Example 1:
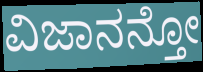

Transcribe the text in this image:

ವಿಜಾನನ್ತೋ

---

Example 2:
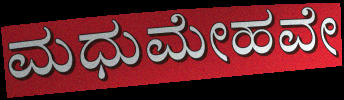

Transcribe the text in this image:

ಮಧುಮೇಹವೇ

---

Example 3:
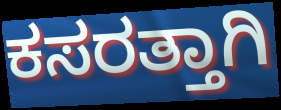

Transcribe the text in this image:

ಕಸರತ್ತಾಗಿ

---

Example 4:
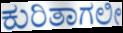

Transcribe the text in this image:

ಕುರಿತಾಗಲೀ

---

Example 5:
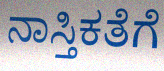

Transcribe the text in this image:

ನಾಸ್ತಿಕತೆಗೆ